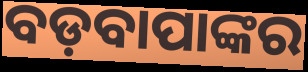
ବଡ଼ବାପାଙ୍କର